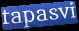
tapasvi